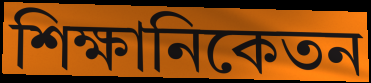
শিক্ষানিকেতন